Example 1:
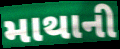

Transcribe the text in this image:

માથાની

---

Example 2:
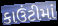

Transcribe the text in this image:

કાઉંટીમાં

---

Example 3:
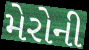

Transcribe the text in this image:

મેરોની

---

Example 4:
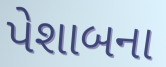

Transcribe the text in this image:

પેશાબના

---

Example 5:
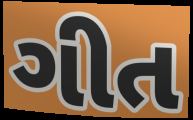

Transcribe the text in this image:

ગીત